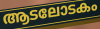
ആടലോടകം